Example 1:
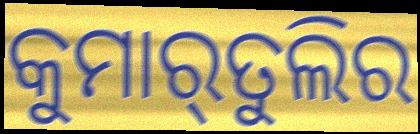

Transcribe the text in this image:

କୁମାର୍‌ତୁଲିର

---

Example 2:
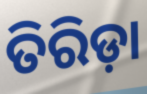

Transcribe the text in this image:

ତିରିଡ଼ା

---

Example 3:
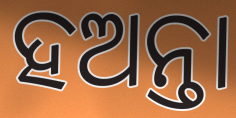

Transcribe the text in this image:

ହଅନ୍ତା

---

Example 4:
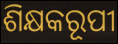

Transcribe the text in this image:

ଶିକ୍ଷକରୂପୀ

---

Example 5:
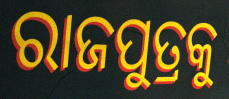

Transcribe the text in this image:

ରାଜପୁତ୍ରକୁ